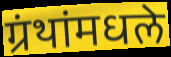
ग्रंथांमधले